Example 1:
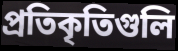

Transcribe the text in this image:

প্রতিকৃতিগুলি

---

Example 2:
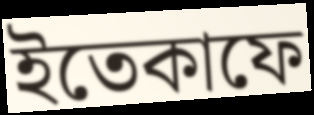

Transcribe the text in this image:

ইতেকাফে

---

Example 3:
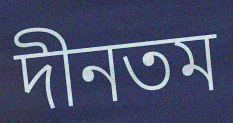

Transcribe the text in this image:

দীনতম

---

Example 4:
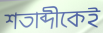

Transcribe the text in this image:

শতাব্দীকেই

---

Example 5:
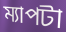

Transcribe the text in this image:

ম্যাপটা